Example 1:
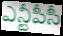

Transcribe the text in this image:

ఎన్టీపీసీ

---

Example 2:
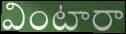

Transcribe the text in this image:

వింటారా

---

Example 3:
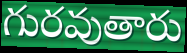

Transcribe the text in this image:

గురవుతారు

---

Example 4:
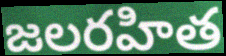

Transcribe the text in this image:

జలరహిత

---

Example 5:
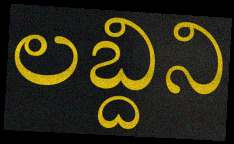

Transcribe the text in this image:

లబ్దిని